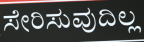
ಸೇರಿಸುವುದಿಲ್ಲ